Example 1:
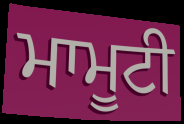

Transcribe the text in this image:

ਮਾਮੂਟੀ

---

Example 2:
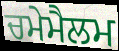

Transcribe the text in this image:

ਚਮੇਮੈਲਮ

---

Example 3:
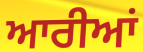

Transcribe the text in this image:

ਆਰੀਆਂ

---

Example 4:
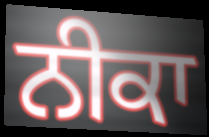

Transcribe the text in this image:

ਨੀਕਾ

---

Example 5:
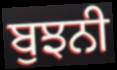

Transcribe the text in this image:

ਬੁਝਨੀ